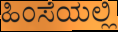
ಹಿಂಸೆಯಲ್ಲಿ